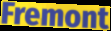
Fremont